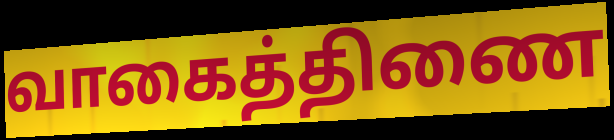
வாகைத்திணை